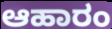
ಆಹಾರಂ